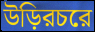
উড়িরচরে